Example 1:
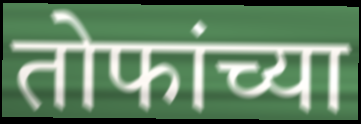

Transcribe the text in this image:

तोफांच्या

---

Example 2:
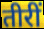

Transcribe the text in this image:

तीरीं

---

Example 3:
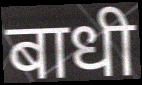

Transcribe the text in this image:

बाधी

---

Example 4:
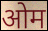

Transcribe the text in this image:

ओम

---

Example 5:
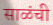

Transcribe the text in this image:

साळंची